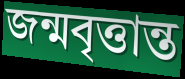
জন্মবৃত্তান্ত